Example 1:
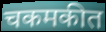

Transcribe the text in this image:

चकमकीत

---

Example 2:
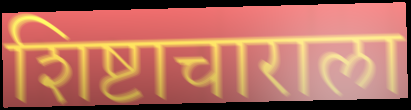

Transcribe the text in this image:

शिष्टाचाराला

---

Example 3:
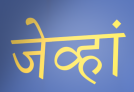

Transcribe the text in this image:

जेव्हां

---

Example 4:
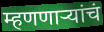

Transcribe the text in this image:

म्हणणाऱ्यांचं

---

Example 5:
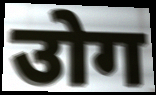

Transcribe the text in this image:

उोग